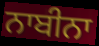
ਨਾਬੀਨਾ